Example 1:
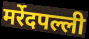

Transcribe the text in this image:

मर्रेदपल्ली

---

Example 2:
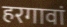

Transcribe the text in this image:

हरगावां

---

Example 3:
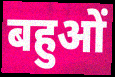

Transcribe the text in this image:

बहुओं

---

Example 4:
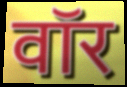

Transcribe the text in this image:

वॉर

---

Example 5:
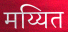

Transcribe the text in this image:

मय्यित